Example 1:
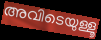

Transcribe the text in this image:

അവിടെയുള്ളൂ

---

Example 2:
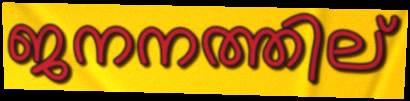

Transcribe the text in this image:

ജനനത്തില്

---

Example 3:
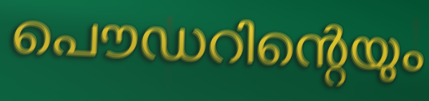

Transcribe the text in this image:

പൌഡറിന്റെയും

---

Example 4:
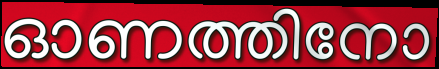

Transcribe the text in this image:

ഓണത്തിനോ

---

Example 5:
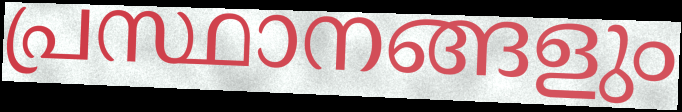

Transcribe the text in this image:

പ്രസ്ഥാനങ്ങളും